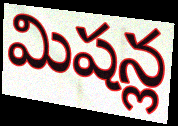
మిషన్ల